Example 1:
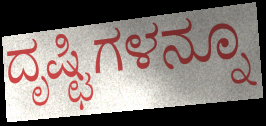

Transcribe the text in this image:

ದೃಷ್ಟಿಗಳನ್ನೂ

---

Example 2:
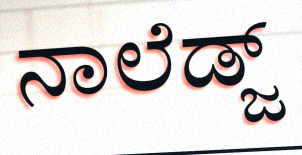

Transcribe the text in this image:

ನಾಲೆಡ್ಜ್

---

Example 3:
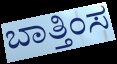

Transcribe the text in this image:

ಬಾತ್ತಿಂಸ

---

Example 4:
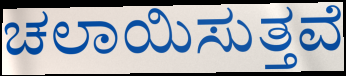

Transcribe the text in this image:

ಚಲಾಯಿಸುತ್ತವೆ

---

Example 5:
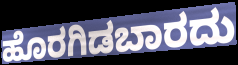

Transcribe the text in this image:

ಹೊರಗಿಡಬಾರದು